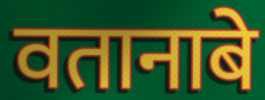
वतानाबे